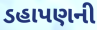
ડહાપણની